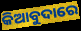
କିଆବୁଦାରେ